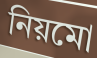
নিয়মো